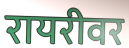
रायरीवर